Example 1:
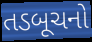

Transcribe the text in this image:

તડબૂચનો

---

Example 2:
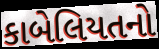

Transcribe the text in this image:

કાબેલિયતનો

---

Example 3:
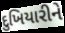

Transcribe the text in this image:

દુખિયારીને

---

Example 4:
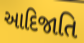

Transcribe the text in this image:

આદિજાતિ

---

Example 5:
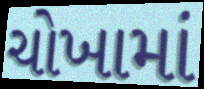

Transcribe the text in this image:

ચોખામાં